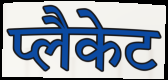
प्लैकेट